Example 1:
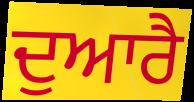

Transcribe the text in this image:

ਦੁਆਰੈ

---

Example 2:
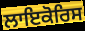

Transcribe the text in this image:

ਲਾਇਕੋਰਿਸ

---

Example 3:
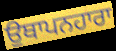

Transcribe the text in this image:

ਉਥਾਪਨਹਾਰਾ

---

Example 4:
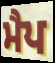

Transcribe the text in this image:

ਮੈਪ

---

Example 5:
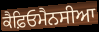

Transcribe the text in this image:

ਕੈਫ਼ਿਓਮੈਨਸੀਆ